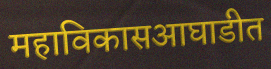
महाविकासआघाडीत